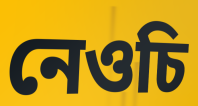
নেওচি